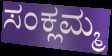
ಸಂಕ್ಲಮ್ಮ